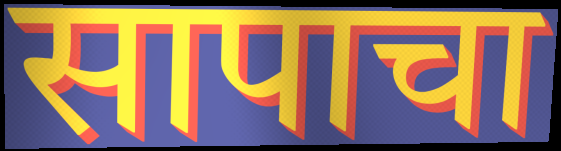
सापाचा